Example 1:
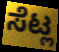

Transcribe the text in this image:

ಸೆಟ್ಲ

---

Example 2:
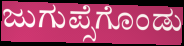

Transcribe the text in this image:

ಜುಗುಪ್ಸೆಗೊಂಡು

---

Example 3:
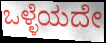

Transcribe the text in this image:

ಒಳ್ಳೆಯದೇ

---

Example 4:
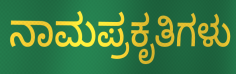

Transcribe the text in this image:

ನಾಮಪ್ರಕೃತಿಗಳು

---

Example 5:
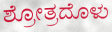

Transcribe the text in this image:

ಶ್ರೋತ್ರದೊಳು